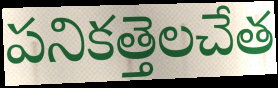
పనికత్తెలచేత